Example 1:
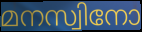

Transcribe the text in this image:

മനസ്വിനോ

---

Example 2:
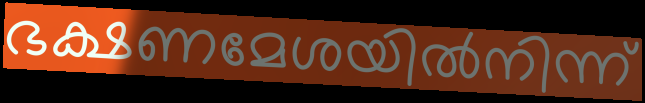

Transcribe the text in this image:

ഭക്ഷണമേശയിൽനിന്ന്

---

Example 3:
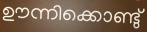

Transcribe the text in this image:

ഊന്നിക്കൊണ്ടു്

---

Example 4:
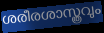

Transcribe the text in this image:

ശരീരശാസ്ത്രവും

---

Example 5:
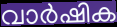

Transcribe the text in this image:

വാർഷിക